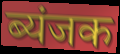
ब्यंजक